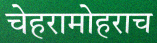
चेहरामोहराच